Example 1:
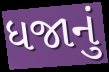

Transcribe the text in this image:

ધજાનું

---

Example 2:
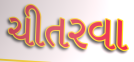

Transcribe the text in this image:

ચીતરવા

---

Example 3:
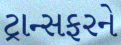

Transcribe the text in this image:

ટ્રાન્સફરને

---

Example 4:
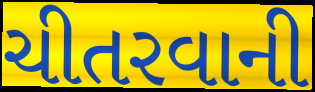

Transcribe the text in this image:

ચીતરવાની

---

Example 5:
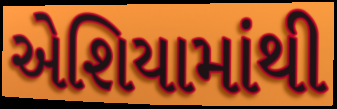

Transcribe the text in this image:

એશિયામાંથી